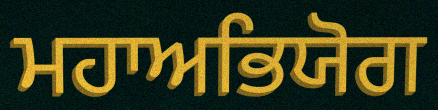
ਮਹਾਅਭਿਯੋਗ